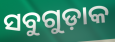
ସବୁଗୁଡ଼ାକ